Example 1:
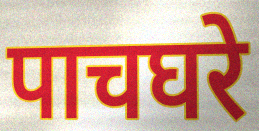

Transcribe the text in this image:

पाचघरे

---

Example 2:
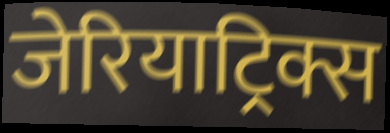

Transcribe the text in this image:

जेरियाट्रिक्स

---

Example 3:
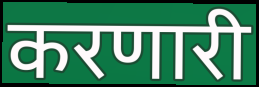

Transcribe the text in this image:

करणारी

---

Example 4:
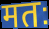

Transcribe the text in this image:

मतः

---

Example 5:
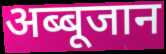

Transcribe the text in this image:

अब्बूजान